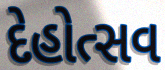
દેહોત્સવ